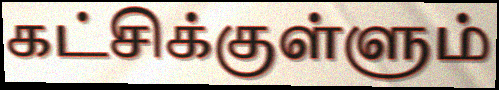
கட்சிக்குள்ளும்